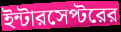
ইন্টারসেপ্টরের